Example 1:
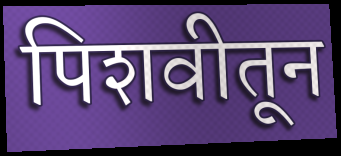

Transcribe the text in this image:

पिशवीतून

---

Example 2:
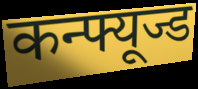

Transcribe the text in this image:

कन्फ्यूज्ड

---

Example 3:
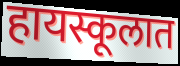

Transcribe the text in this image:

हायस्कूलात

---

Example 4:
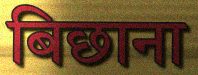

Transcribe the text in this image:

बिछाना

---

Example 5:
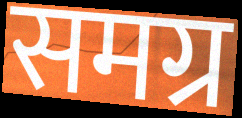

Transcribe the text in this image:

समग्र